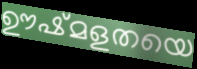
ഊഷ്മളതയെ